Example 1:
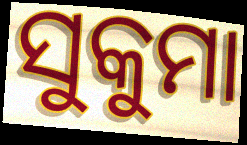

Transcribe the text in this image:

ସୁକୁମା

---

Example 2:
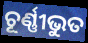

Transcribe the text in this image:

ଚୂର୍ଣ୍ଣୀଭୁତ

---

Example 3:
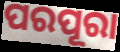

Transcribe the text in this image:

ପରପୂରା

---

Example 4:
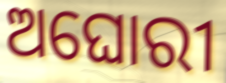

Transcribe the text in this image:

ଅଘୋରୀ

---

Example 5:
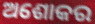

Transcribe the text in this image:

ଅଶୋକର